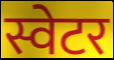
स्वेटर